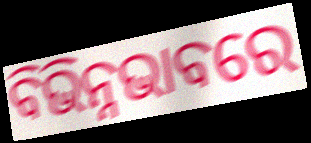
ବିଭିନ୍ନଭାବରେ